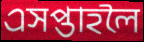
এসপ্তাহলৈ